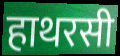
हाथरसी